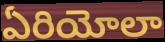
ఏరియోలా